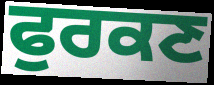
ਫੁਰਕਣ